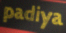
padiya